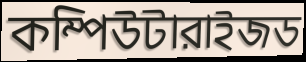
কম্পিউটারাইজড